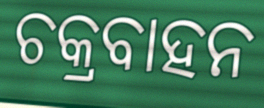
ଚକ୍ରବାହନ